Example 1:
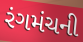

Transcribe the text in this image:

રંગમંચની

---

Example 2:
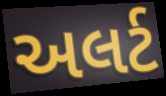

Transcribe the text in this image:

અલર્ટ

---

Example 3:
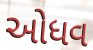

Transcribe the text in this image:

ઓધવ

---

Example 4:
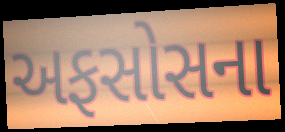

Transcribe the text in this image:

અફસોસના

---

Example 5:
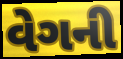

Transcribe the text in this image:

વેગની